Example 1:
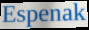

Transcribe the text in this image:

Espenak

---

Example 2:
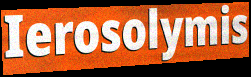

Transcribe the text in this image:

Ierosolymis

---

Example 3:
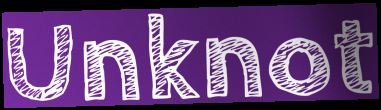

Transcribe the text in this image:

Unknot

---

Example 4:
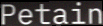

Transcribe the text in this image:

Petain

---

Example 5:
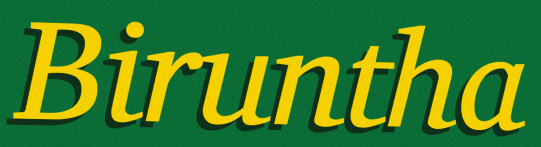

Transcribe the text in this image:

Biruntha